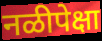
नळीपेक्षा